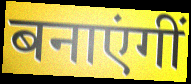
बनाएंगीं